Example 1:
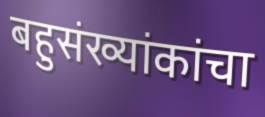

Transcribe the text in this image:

बहुसंख्यांकांचा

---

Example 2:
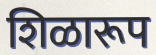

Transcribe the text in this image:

शिळारूप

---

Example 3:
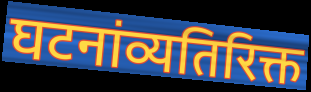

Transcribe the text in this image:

घटनांव्यतिरिक्त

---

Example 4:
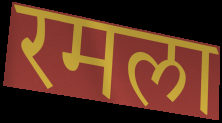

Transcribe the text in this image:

रमला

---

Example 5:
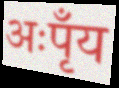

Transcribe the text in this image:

अःपृँय